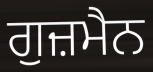
ਗੁਜ਼ਮੈਨ